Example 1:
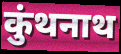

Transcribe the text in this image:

कुंथनाथ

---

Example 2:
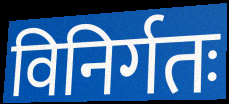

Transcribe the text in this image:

विनिर्गतः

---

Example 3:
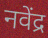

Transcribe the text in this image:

नवेंद्र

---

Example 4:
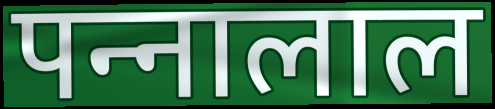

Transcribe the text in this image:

पन्नालाल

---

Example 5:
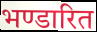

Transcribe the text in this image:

भण्डारित